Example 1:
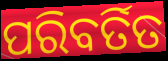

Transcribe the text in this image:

ପରିବର୍ତିତ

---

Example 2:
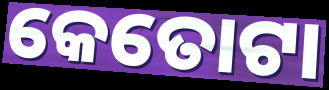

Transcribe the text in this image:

କେତୋଟା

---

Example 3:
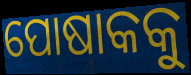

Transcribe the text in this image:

ପୋଷାକକୁ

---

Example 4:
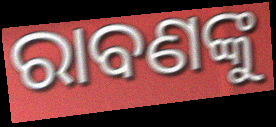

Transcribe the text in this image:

ରାବଣଙ୍କୁ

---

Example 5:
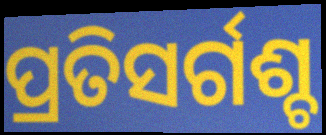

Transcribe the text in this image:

ପ୍ରତିସର୍ଗଶ୍ଚ